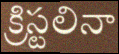
క్రిస్టలినా